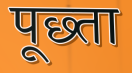
पूछ्ता